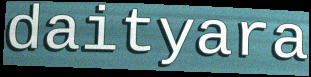
daityara